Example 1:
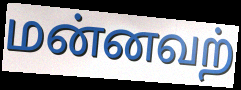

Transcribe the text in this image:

மன்னவற்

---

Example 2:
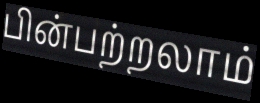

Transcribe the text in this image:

பின்பற்றலாம்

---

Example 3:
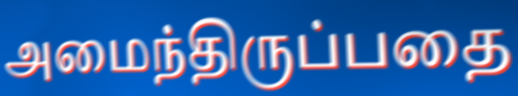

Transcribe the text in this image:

அமைந்திருப்பதை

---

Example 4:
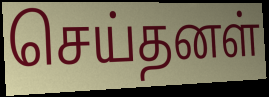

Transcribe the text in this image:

செய்தனள்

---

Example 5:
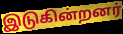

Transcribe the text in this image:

இடுகின்றனர்